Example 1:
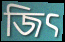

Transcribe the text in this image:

জিৎ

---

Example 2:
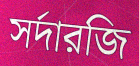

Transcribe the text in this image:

সর্দারজি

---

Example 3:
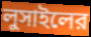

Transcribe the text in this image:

লুসাইলের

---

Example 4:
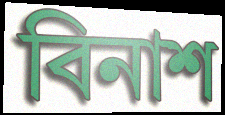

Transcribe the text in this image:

বিনাশ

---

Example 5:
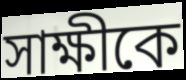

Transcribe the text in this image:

সাক্ষীকে